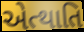
એત્થાતિ